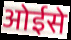
ओईसे